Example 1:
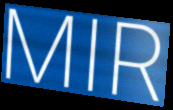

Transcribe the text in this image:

MIR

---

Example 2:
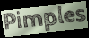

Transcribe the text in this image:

Pimples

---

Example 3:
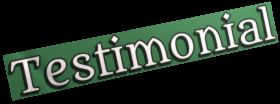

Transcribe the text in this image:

Testimonial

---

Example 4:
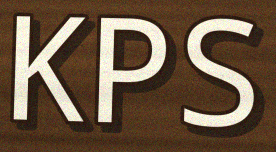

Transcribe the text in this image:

KPS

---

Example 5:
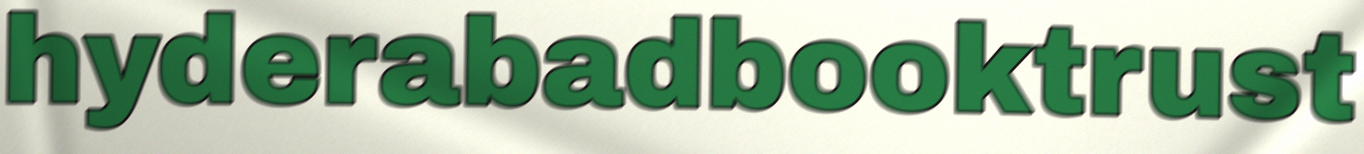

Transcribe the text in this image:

hyderabadbooktrust